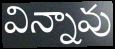
విన్నావు